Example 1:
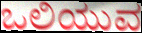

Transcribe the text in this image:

ಒಲಿಯುವ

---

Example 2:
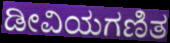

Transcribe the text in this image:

ಡೀವಿಯಗಣಿತ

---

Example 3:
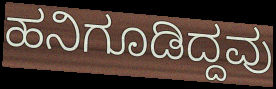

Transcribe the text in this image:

ಹನಿಗೂಡಿದ್ದವು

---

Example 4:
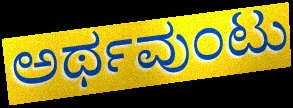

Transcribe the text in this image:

ಅರ್ಥವುಂಟು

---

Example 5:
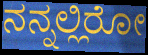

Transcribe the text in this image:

ನನ್ನಲ್ಲಿರೋ